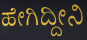
ಹೇಗಿದ್ದೀನಿ